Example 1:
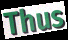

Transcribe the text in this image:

Thus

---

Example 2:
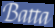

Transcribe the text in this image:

Batta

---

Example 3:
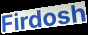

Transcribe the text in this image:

Firdosh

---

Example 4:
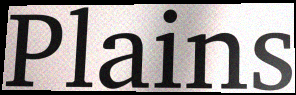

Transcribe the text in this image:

Plains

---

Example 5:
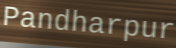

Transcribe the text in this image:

Pandharpur